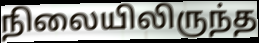
நிலையிலிருந்த